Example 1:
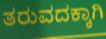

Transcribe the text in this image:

ತರುವದಕ್ಕಾಗಿ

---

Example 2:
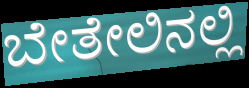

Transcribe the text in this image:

ಬೇತೇಲಿನಲ್ಲಿ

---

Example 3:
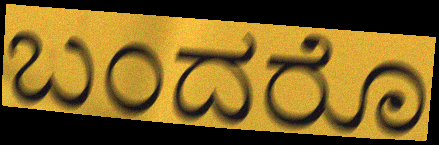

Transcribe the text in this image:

ಬಂದರೊ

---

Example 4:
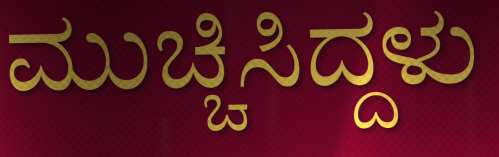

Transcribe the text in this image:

ಮುಚ್ಚಿಸಿದ್ದಳು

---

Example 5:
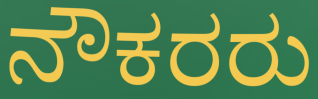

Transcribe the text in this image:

ನೌಕರರು